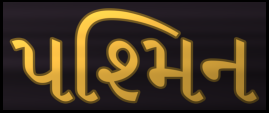
પશ્મિન